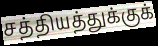
சத்தியத்துக்குக்